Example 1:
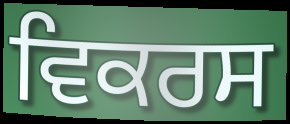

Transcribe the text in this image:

ਵਿਕਰਸ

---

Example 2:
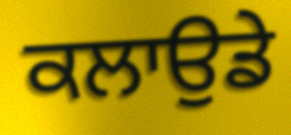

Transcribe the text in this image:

ਕਲਾਉਡੇ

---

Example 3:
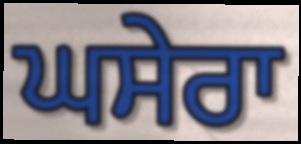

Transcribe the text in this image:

ਘਸੇਰਾ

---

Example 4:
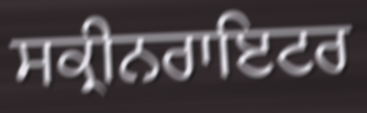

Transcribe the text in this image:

ਸਕ੍ਰੀਨਰਾਇਟਰ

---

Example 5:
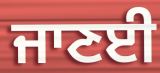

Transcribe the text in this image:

ਜਾਣਈ